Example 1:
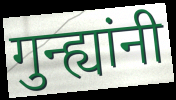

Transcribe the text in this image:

गुन्ह्यांनी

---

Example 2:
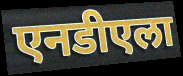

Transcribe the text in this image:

एनडीएला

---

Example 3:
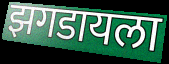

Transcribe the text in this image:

झगडायला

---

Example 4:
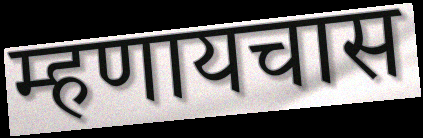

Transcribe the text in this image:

म्हणायचास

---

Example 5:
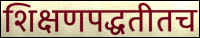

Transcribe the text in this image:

शिक्षणपद्धतीतच